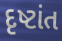
દૃષ્ટાંત